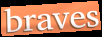
braves